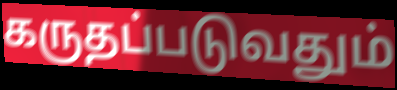
கருதப்படுவதும்